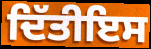
ਦਿੱਤੀਇਸ